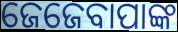
ଜେଜେବାପାଙ୍କ